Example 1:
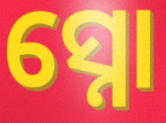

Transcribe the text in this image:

ସ୍ନୋ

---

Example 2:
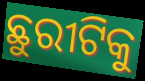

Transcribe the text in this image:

ଛୁରୀଟିକୁ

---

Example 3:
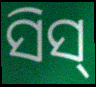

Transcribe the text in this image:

ସିସ୍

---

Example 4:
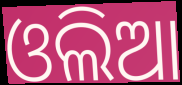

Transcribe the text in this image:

ଓଲିଆ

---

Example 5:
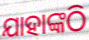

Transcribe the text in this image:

ଯାହାଙ୍କଠି